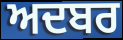
ਅਦਬਰ